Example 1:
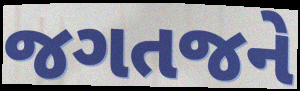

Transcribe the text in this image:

જગતજને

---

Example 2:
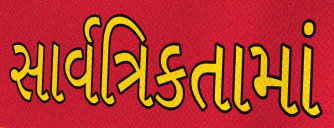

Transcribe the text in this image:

સાર્વત્રિકતામાં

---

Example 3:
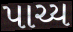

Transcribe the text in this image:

પાચ્ય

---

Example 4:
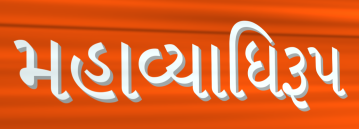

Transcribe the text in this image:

મહાવ્યાધિરૂપ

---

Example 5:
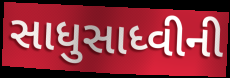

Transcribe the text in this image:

સાધુસાધ્વીની